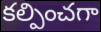
కల్పించగా